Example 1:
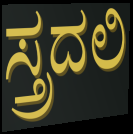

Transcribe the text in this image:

ಸ್ತ್ರದಲಿ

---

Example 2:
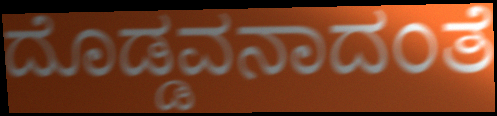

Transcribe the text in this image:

ದೊಡ್ಡವನಾದಂತೆ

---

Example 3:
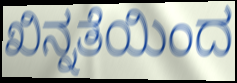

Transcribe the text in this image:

ಖಿನ್ನತೆಯಿಂದ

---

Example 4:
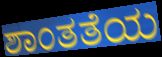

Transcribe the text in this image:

ಶಾಂತತೆಯ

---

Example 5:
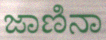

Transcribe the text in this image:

ಜಾಣಿನಾ